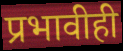
प्रभावीही